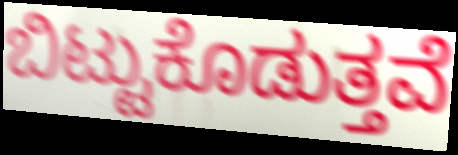
ಬಿಟ್ಟುಕೊಡುತ್ತವೆ